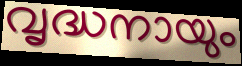
വൃദ്ധനായും